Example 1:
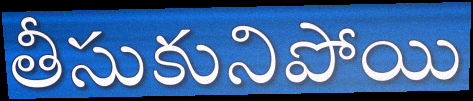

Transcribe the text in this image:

తీసుకునిపోయి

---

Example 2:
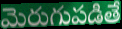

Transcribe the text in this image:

మెరుగుపడితే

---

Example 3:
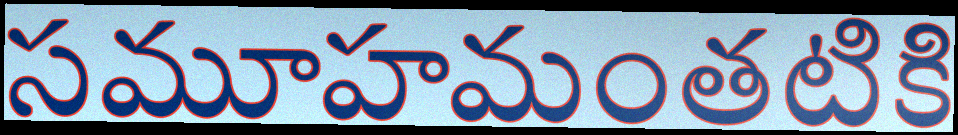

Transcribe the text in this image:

సమూహమంతటికి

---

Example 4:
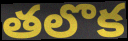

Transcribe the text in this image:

తలొక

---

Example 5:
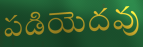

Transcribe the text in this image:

పడియెదవు